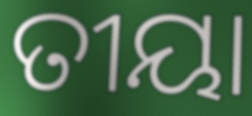
ତୀୟା